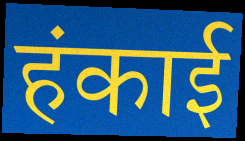
हंकाई